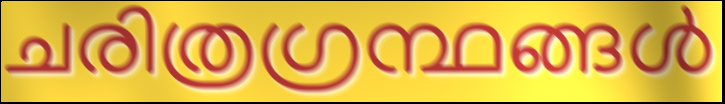
ചരിത്രഗ്രന്ഥങ്ങൾ